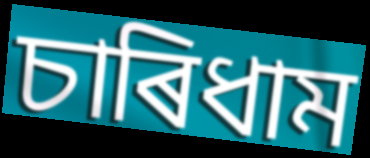
চাৰিধাম